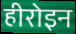
हीरोइन